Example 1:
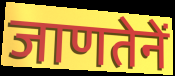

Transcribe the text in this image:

जाणतेनें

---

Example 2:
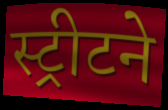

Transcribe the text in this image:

स्ट्रीटने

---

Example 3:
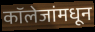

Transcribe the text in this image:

कॉलेजांमधून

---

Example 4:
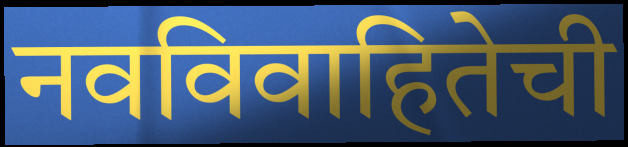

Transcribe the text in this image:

नवविवाहितेची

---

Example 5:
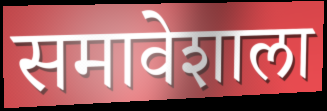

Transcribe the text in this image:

समावेशाला